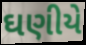
ઘણીયે